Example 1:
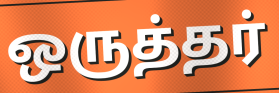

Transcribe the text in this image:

ஒருத்தர்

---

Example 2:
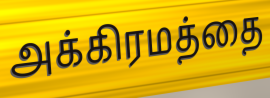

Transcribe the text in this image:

அக்கிரமத்தை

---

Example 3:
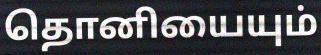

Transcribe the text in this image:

தொனியையும்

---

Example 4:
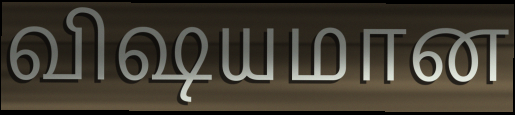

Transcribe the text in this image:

விஷயமான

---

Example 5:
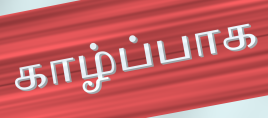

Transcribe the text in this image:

காழ்ப்பாக